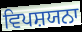
ਵਿਪਸ਼ਯਨਾ